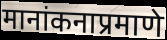
मानांकनाप्रमाणे